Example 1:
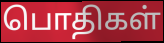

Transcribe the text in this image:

பொதிகள்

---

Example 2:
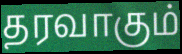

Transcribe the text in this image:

தரவாகும்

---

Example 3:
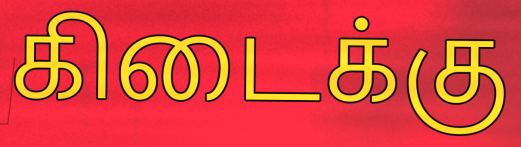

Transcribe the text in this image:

கிடைக்கு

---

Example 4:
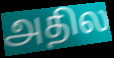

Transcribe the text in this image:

அதில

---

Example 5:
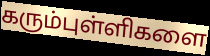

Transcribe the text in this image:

கரும்புள்ளிகளை